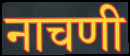
नाचणी